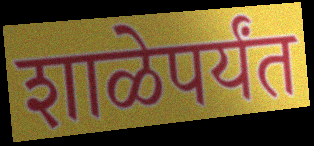
शाळेपर्यंत